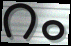
റം